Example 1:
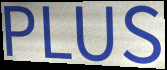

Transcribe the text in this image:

PLUS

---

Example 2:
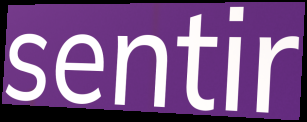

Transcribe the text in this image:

sentir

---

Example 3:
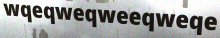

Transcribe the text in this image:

wqeqweqweeqweqe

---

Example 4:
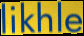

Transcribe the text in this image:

likhle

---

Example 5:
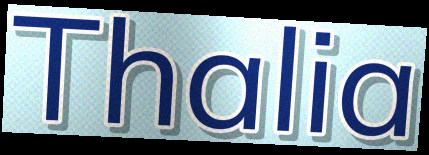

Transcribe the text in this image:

Thalia